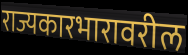
राज्यकारभारावरील